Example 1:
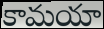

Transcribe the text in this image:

కామయా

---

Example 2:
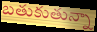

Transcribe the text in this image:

బతుకుతున్నా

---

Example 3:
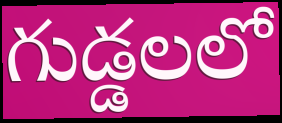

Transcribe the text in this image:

గుడ్డలలో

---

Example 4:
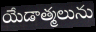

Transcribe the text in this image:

యేడాత్మలును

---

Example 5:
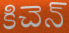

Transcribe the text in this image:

కిచెన్